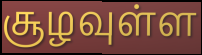
சூழவுள்ள